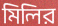
মিলির